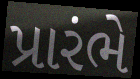
પ્રારંભે